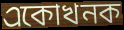
একোখনক